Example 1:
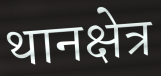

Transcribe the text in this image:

थानक्षेत्र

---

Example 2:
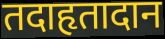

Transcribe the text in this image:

तदाहृतादान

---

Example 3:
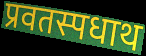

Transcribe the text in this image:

प्रवतस्पधाथ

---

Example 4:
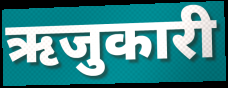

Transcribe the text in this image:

ऋजुकारी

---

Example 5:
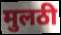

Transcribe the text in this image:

मुलठी